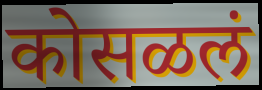
कोसळलं